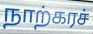
நாற்கரச்